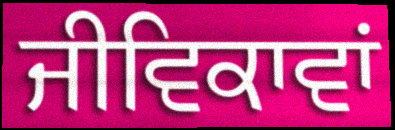
ਜੀਵਿਕਾਵਾਂ